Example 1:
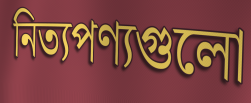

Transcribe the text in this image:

নিত্যপণ্যগুলো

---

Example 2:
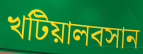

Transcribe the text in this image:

খটিয়ালবসান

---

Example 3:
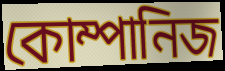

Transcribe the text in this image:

কোম্পানিজ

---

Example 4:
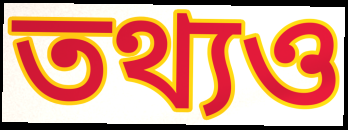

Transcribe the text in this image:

তথ্যও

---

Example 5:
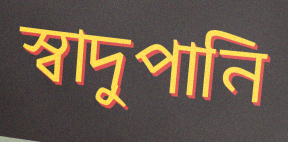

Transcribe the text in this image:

স্বাদুপানি